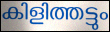
കിളിത്തട്ടും